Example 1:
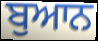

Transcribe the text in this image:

ਬੁਆਨ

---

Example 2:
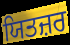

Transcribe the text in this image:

ਯਿਤਜ਼ਰ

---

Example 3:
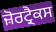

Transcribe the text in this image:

ਜ਼ੋਰਟ੍ਰੈਕਸ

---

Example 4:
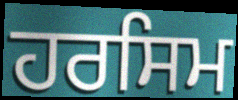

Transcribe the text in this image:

ਹਰਸਿਮ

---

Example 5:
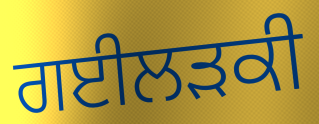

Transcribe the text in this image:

ਗਈਲੜਕੀ